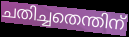
ചതിച്ചതെന്തിന്